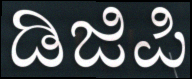
ಡಿಜಿಪಿ